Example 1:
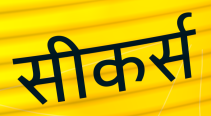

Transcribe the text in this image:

सीकर्स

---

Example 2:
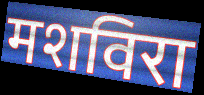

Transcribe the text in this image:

मशविरा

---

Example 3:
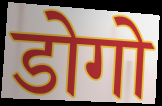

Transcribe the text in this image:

डोगो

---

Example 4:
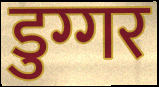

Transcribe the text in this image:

डुग्गर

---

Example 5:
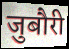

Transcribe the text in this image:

जुबौरी